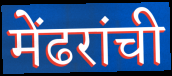
मेंढरांची